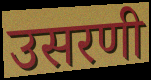
उसरणी